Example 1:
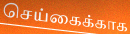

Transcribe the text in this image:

செய்கைக்காக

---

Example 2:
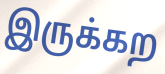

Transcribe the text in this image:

இருக்கற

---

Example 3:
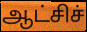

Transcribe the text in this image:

ஆட்சிச்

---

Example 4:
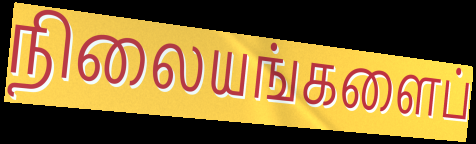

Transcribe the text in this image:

நிலையங்களைப்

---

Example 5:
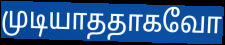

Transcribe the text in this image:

முடியாததாகவோ